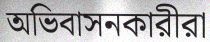
অভিবাসনকারীরা